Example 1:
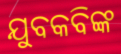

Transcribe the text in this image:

ଯୁବକବିଙ୍କ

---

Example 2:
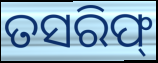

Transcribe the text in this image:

ତସରିଫ୍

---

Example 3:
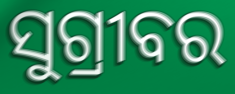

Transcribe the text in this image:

ସୁଗ୍ରୀବର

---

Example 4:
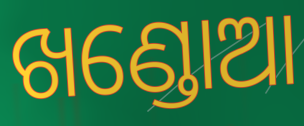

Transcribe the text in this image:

ଖଣ୍ଡୋଆ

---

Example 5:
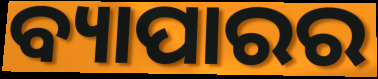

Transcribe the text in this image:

ବ୍ୟାପାରର